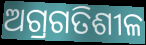
ଅଗ୍ରଗତିଶୀଳ